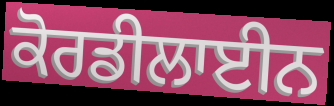
ਕੋਰਡੀਲਾਈਨ